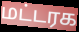
மட்டரக